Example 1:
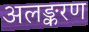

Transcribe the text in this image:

अलङ्करण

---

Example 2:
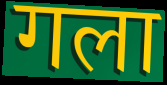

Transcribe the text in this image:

गला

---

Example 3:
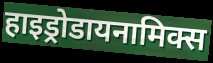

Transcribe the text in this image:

हाइड्रोडायनामिक्स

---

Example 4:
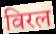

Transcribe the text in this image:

विरल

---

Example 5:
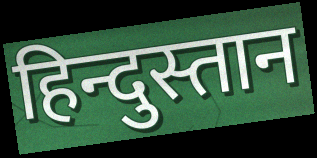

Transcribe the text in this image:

हिन्‍दुस्‍तान